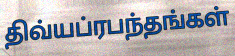
திவ்யப்ரபந்தங்கள்